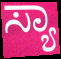
ಸ್ಯಾ